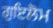
ਗੁਇਲੋਮ